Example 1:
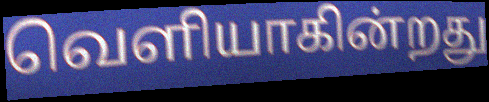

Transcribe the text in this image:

வெளியாகின்றது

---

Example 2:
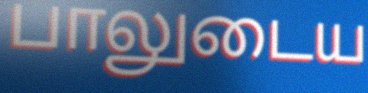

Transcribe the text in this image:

பாலுடைய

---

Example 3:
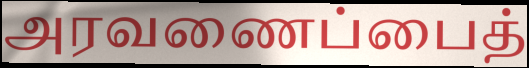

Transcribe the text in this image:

அரவணைப்பைத்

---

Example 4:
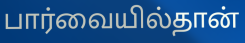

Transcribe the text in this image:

பார்வையில்தான்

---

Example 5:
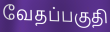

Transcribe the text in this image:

வேதப்பகுதி